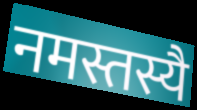
नमस्तस्यै